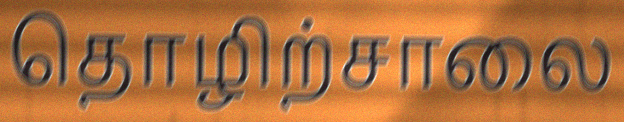
தொழிற்சாலை